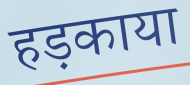
हड़काया